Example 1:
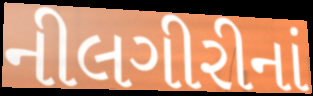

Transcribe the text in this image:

નીલગીરીનાં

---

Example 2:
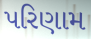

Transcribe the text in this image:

પરિણામ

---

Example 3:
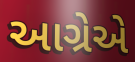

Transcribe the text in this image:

આગ્રેએ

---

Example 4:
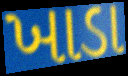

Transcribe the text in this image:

ખાડા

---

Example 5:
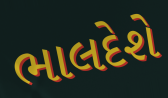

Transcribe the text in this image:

ભાલદેશે